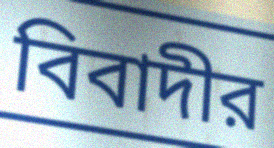
বিবাদীর